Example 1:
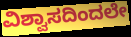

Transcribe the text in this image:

ವಿಶ್ವಾಸದಿಂದಲೇ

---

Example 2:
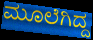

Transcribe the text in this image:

ಮೂಲೆಗಿದ್ದ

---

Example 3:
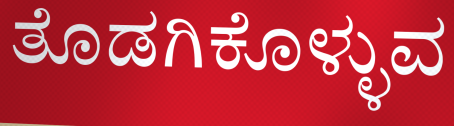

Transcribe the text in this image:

ತೊಡಗಿಕೊಳ್ಳುವ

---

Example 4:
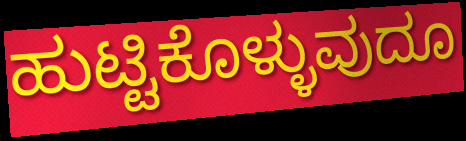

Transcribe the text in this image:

ಹುಟ್ಟಿಕೊಳ್ಳುವುದೂ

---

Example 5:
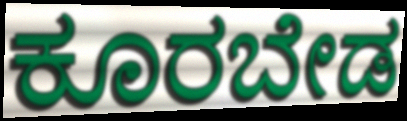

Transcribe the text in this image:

ಕೂರಬೇಡ